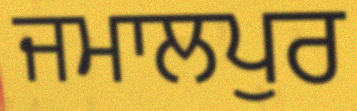
ਜਮਾਲਪੁਰ